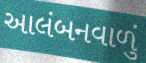
આલંબનવાળું